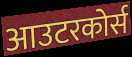
आउटरकोर्स